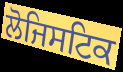
ਲੋਜਿਸਟਿਕ